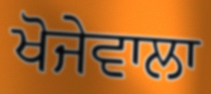
ਖੋਜੇਵਾਲਾ